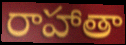
రాహాతా